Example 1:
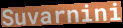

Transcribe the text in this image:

Suvarnini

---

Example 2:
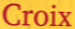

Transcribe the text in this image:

Croix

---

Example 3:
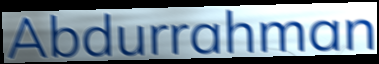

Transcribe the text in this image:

Abdurrahman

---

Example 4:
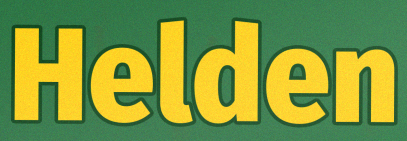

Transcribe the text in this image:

Helden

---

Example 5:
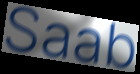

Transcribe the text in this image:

Saab